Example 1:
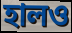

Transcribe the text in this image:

হালও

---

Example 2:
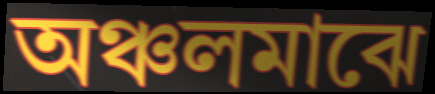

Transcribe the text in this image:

অঞ্চলমাঝে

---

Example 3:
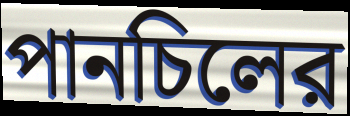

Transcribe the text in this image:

পানচিলের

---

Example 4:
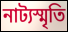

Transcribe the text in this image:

নাট্যস্মৃতি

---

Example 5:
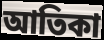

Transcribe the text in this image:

আতিকা